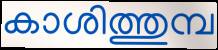
കാശിത്തുമ്പ